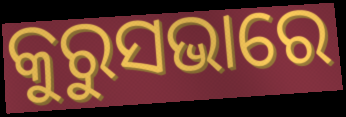
କୁରୁସଭାରେ